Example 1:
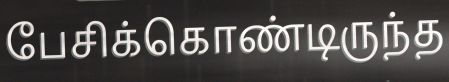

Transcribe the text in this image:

பேசிக்கொண்டிருந்த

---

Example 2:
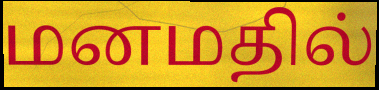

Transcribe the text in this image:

மனமதில்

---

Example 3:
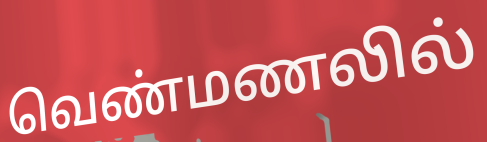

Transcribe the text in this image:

வெண்மணலில்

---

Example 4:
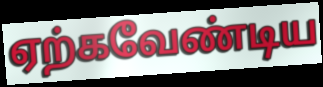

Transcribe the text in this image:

ஏற்கவேண்டிய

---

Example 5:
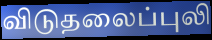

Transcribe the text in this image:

விடுதலைப்புலி